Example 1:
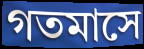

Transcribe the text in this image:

গতমাসে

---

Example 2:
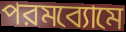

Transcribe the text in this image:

পরমব্যোমে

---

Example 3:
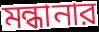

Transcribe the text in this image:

মন্ধানার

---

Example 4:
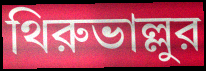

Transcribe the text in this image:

থিরুভাল্লুর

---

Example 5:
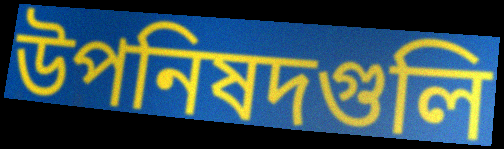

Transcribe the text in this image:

উপনিষদগুলি